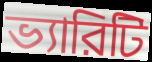
ভ্যারিটি